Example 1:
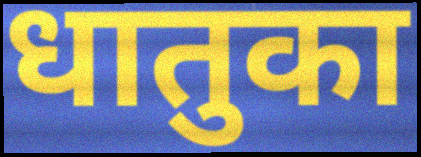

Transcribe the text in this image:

धातुका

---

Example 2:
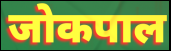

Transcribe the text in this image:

जोकपाल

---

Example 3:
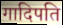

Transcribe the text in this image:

गादिपति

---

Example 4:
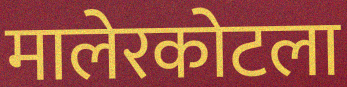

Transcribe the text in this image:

मालेरकोटला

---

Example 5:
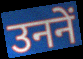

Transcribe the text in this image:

उननें